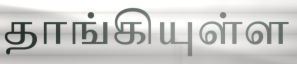
தாங்கியுள்ள